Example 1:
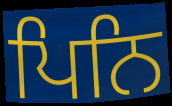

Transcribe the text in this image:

ਪਿਨਿ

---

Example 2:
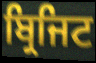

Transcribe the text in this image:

ਬ੍ਰਿਜਿਟ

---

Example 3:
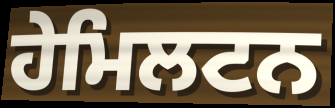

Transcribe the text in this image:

ਹੇਮਿਲਟਨ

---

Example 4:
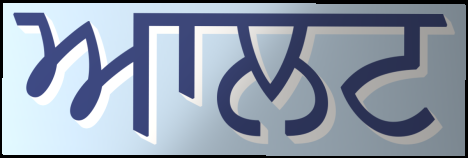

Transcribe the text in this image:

ਆਲਟ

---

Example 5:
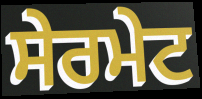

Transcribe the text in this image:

ਸੇਰਮੇਟ